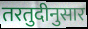
तरतुदीनुसार